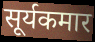
सूर्यकमार